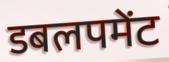
डबलपमेंट